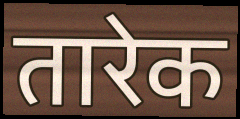
तारेक